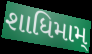
શાધિમામ્